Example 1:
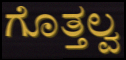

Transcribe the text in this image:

ಗೊತ್ತಲ್ವ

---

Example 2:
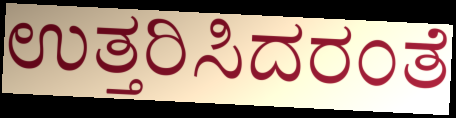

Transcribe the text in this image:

ಉತ್ತರಿಸಿದರಂತೆ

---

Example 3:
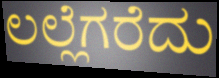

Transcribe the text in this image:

ಲಲ್ಲೆಗರೆದು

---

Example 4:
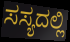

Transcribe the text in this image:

ಸಸ್ಯದಲ್ಲಿ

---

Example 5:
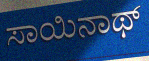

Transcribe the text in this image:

ಸಾಯಿನಾಥ್